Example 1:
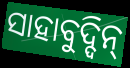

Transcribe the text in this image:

ସାହାବୁଦ୍ଦିନ୍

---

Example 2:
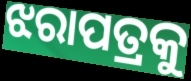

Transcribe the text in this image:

ଝରାପତ୍ରକୁ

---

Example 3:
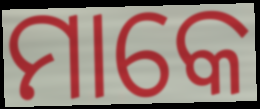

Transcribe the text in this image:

ମାକେ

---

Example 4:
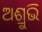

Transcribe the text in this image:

ଅଶ୍ରୁଭି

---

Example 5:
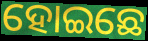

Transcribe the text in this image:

ହୋଇଛେ